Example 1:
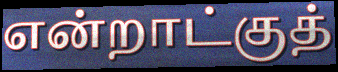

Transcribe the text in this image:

என்றாட்குத்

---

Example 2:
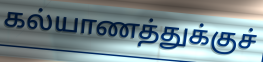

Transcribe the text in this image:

கல்யாணத்துக்குச்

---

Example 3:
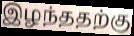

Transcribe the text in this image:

இழந்ததற்கு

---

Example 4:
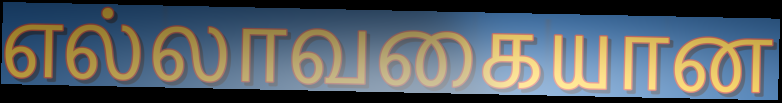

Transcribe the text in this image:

எல்லாவகையான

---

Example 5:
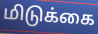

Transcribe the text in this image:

மிடுக்கை